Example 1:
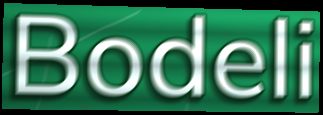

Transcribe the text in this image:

Bodeli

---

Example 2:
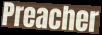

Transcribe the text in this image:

Preacher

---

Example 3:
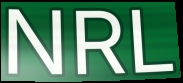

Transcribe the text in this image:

NRL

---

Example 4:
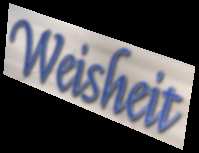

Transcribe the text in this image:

Weisheit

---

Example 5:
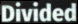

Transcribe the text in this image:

Divided